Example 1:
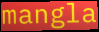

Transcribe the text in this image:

mangla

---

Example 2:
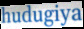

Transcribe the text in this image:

hudugiya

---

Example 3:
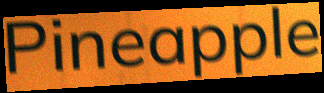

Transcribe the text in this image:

Pineapple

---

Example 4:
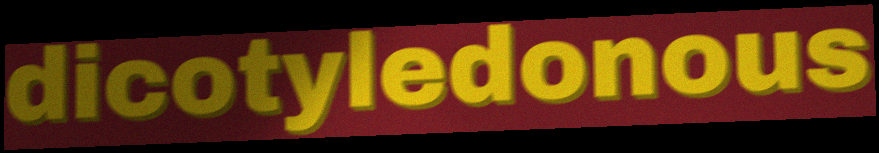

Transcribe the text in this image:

dicotyledonous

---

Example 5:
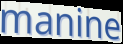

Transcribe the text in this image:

manine